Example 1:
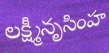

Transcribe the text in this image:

లక్ష్మీనృసింహ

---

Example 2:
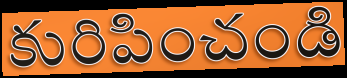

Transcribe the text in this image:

కురిపించండి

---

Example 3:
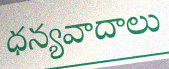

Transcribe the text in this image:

ధన్యవాదాలు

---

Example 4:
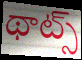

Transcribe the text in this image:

థాట్స్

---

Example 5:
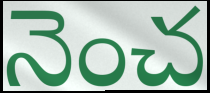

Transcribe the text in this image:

నెంచ